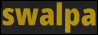
swalpa